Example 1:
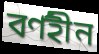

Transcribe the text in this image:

বৰ্ণহীন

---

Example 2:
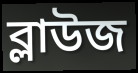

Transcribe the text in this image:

ব্লাউজ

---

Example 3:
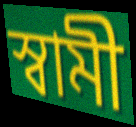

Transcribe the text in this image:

স্বামী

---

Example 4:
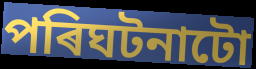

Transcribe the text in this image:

পৰিঘটনাটো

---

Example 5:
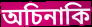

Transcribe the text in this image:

অচিনাকি